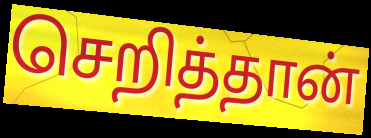
செறித்தான்